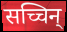
सच्चिन्